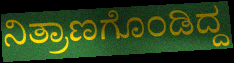
ನಿತ್ರಾಣಗೊಂಡಿದ್ದ